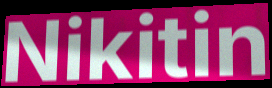
Nikitin